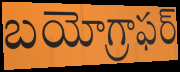
బయోగ్రాఫర్